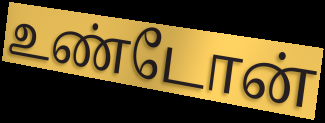
உண்டோன்